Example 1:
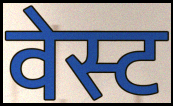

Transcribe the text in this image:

वेस्ट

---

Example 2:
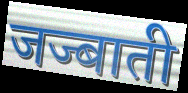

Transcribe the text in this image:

जज्बाती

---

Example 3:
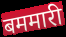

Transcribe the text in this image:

बममारी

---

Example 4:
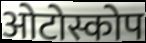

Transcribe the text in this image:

ओटोस्कोप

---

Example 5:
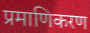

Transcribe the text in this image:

प्रमाणिकरण